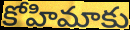
కోహిమాకు